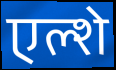
एल्शे